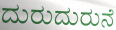
ದುರುದುರುನೆ